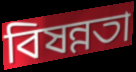
বিষন্নতা